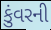
કુંવરની